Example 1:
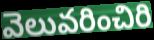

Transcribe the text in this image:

వెలువరించిరి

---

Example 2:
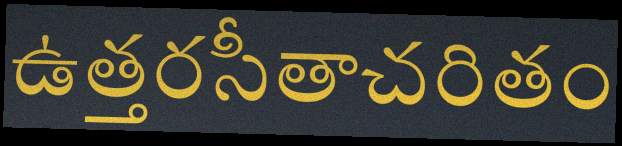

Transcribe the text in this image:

ఉత్తరసీతాచరితం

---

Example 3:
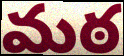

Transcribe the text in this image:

మఠ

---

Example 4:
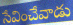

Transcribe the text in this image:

సేవించేవాడు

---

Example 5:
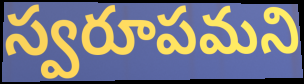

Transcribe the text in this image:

స్వరూపమని